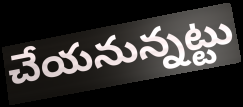
చేయనున్నట్టు